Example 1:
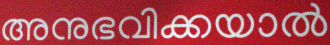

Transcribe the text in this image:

അനുഭവിക്കയാൽ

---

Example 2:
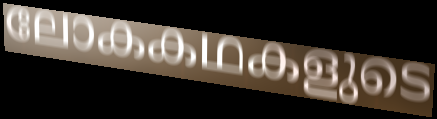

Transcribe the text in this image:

ലോകകഥകളുടെ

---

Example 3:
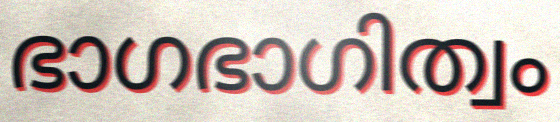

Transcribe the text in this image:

ഭാഗഭാഗിത്വം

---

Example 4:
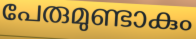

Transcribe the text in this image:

പേരുമുണ്ടാകും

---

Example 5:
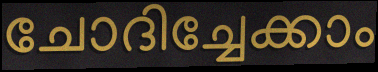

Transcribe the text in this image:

ചോദിച്ചേക്കാം